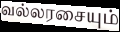
வல்லரசையும்